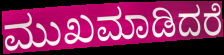
ಮುಖಮಾಡಿದರೆ